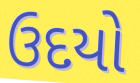
ઉદયો